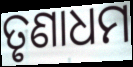
ତୃଣାଧମ